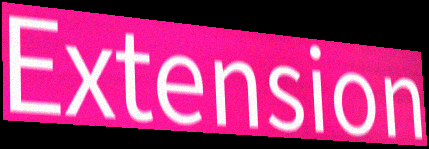
Extension